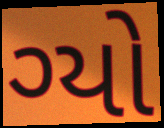
ગ્યો